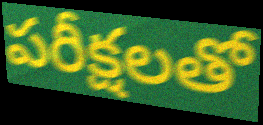
పరీక్షలతో